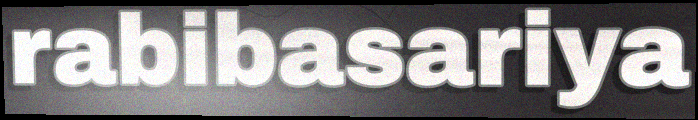
rabibasariya